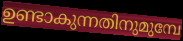
ഉണ്ടാകുന്നതിനുമുമ്പേ